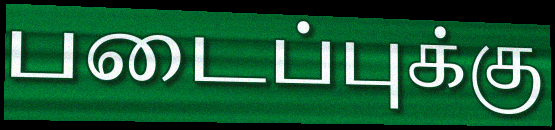
படைப்புக்கு